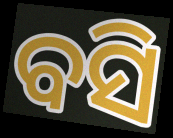
ବସି